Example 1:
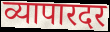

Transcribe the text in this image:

व्यापारदर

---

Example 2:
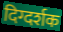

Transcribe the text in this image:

दिग्‍दर्शक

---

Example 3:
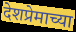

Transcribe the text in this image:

देशप्रेमाच्या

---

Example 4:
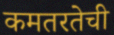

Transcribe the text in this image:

कमतरतेची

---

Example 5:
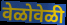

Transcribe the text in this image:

वेळोवेळी